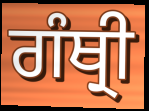
ਗੰਥ੍ਰੀ